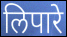
लिपारे